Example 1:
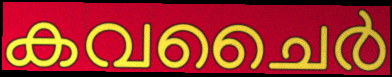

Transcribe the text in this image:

കവചൈർ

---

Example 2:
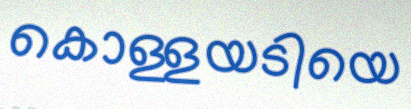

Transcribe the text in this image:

കൊള്ളയടിയെ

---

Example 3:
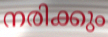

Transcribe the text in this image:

നരിക്കും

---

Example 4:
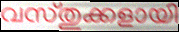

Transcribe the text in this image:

വസ്തുക്കളായി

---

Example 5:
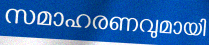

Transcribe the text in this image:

സമാഹരണവുമായി